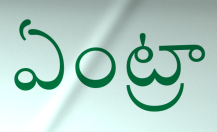
ఏంట్రా